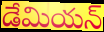
డేమియన్